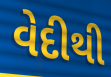
વેદીથી